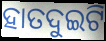
ହାତଦୁଇଟି